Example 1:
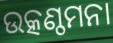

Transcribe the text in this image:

ଉତ୍କଣ୍ଠମନା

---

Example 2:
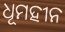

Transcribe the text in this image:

ଧୂମହୀନ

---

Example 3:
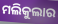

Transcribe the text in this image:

ମଲିକୁଲାର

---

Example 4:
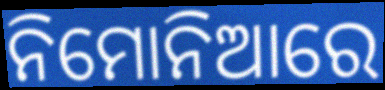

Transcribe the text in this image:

ନିମୋନିଆରେ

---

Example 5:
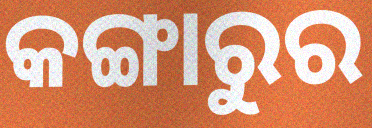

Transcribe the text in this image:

କଙ୍ଗାରୁର